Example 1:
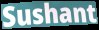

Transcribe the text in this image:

Sushant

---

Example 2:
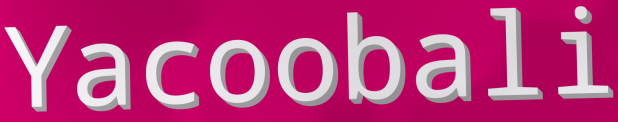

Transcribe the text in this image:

Yacoobali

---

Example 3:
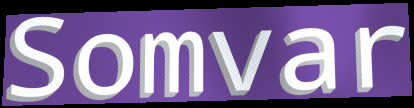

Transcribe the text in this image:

Somvar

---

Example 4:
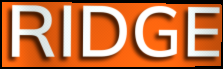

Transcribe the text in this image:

RIDGE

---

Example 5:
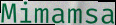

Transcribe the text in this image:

Mimamsa